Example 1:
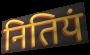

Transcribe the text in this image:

नितियं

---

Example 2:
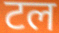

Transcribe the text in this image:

टल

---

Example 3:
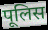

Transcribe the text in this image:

पूलिस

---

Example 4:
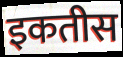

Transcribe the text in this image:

इकतीस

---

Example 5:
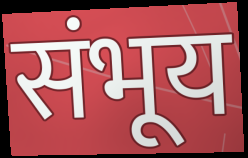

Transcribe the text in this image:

संभूय